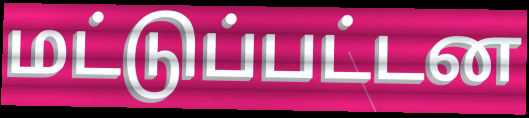
மட்டுப்பட்டன